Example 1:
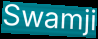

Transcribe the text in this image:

Swamji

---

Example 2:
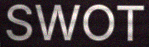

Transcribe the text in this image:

SWOT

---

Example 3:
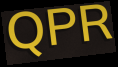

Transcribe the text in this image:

QPR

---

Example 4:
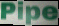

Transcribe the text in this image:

Pipe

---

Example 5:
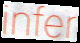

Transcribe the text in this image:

infer